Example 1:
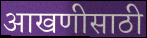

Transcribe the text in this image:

आखणीसाठी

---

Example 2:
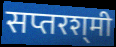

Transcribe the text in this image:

सप्तरश्मी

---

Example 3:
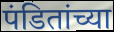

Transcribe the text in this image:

पंडितांच्या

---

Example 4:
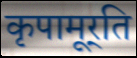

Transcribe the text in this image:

कृपामूर्ति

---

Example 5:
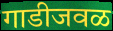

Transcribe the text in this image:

गाडीजवळ